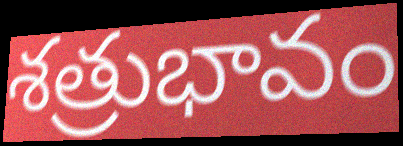
శత్రుభావం